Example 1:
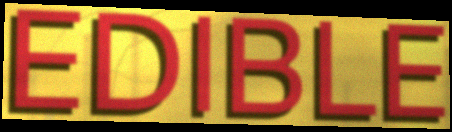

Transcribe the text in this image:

EDIBLE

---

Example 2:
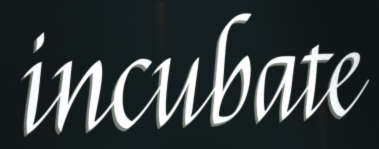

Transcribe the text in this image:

incubate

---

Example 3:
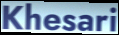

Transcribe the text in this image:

Khesari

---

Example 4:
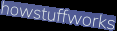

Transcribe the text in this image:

howstuffworks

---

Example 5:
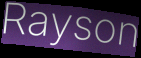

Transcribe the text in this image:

Rayson